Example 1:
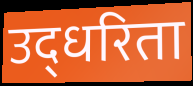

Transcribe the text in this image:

उद्धरिता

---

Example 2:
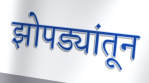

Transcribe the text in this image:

झोपड्यांतून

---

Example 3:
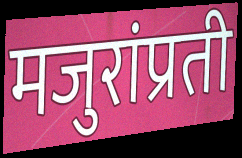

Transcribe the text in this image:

मजुरांप्रती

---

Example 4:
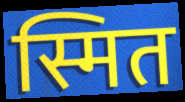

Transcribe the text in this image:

स्मित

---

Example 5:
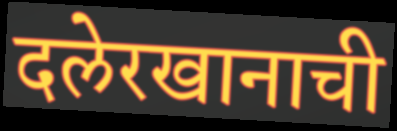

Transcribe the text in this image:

दलेरखानाची